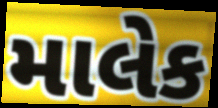
માલેક